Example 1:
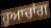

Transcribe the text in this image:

ਹੁਆਚਾਂਗ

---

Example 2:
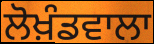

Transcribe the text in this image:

ਲੋਖ਼ੰਡਵਾਲਾ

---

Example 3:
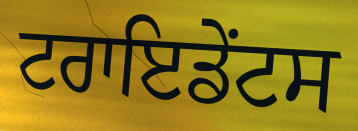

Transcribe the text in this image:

ਟਰਾਇਡੇਂਟਸ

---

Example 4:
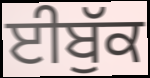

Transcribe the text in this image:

ਈਬੁੱਕ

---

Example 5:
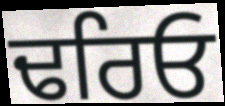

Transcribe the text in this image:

ਢਰਿਓ